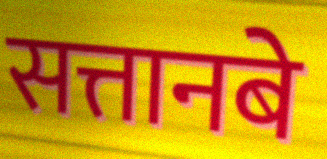
सत्तानबे